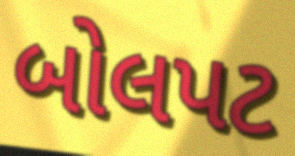
બોલપટ